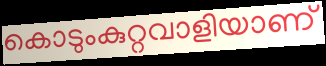
കൊടുംകുറ്റവാളിയാണ്